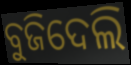
ବୁଜିଦେଲି